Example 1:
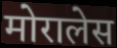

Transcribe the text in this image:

मोरालेस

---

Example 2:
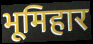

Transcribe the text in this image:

भूमिहार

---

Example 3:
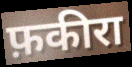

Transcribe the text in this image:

फ़कीरा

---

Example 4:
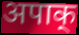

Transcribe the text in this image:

अपाक्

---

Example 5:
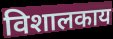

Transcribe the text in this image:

विशालकाय